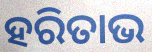
ହରିତାଭ